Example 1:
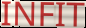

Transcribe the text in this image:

INFIT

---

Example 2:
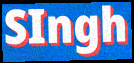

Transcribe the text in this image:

SIngh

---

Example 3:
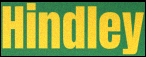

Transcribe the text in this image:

Hindley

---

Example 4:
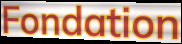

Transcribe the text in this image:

Fondation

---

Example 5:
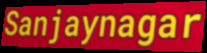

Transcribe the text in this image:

Sanjaynagar